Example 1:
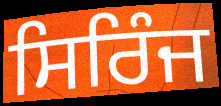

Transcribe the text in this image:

ਸਿਰਿੰਜ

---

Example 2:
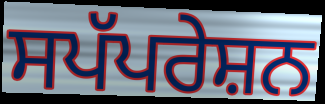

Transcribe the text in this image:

ਸਪੱਪਰੇਸ਼ਨ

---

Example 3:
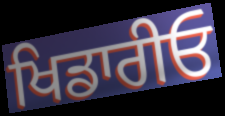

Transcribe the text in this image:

ਖਿਡਾਰੀਓ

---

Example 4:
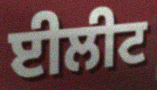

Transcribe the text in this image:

ਈਲੀਟ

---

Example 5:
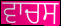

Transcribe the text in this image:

ਵਾਚਸ